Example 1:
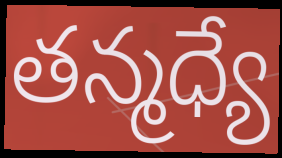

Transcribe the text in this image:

తన్మధ్యే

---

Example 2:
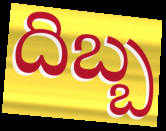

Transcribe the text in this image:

దిబ్బ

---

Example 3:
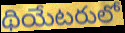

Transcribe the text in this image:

థియేటరులో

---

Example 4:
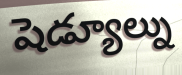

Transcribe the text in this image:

షెడ్యూల్ను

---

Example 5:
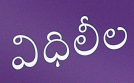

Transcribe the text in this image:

విధిలీల